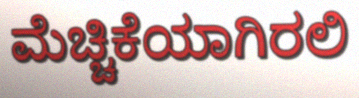
ಮೆಚ್ಚಿಕೆಯಾಗಿರಲಿ